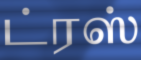
ட்ரஸ்